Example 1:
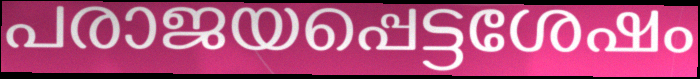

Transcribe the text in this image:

പരാജയപ്പെട്ടശേഷം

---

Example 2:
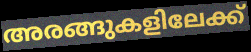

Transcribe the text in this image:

അരങ്ങുകളിലേക്ക്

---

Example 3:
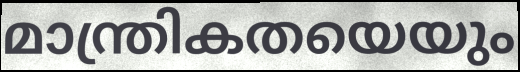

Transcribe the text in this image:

മാന്ത്രികതയെയും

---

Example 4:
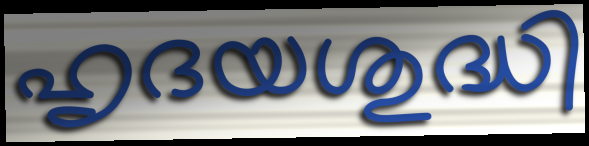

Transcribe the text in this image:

ഹൃദയശുദ്ധി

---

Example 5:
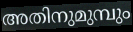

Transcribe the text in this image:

അതിനുമുമ്പും